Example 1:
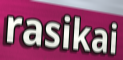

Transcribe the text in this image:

rasikai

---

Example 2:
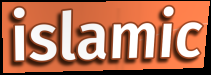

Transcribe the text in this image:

islamic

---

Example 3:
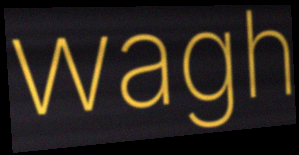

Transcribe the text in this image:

wagh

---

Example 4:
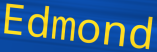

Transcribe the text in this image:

Edmond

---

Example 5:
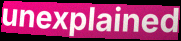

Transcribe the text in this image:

unexplained